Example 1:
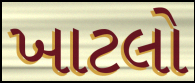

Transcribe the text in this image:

ખાટલો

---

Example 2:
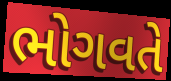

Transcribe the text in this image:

ભોગવતે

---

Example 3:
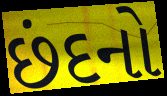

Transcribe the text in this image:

છંદનો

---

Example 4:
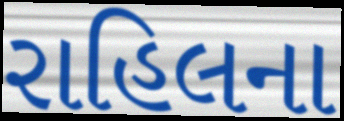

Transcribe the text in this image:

રાહિલના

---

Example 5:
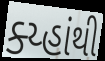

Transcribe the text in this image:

ક્ય્હાંથી